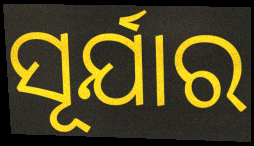
ସୂର୍ଯାର